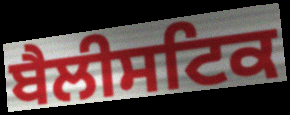
ਬੈਲੀਸਟਿਕ